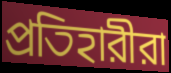
প্রতিহারীরা